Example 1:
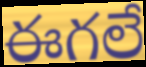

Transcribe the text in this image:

ఈగలే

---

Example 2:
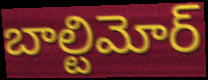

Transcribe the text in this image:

బాల్టిమోర్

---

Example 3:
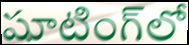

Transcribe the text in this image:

షూటింగ్‌లో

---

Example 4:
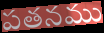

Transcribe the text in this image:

పతనము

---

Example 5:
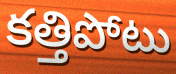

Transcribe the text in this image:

కత్తిపోటు